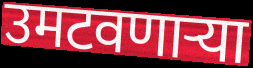
उमटवणार्‍या